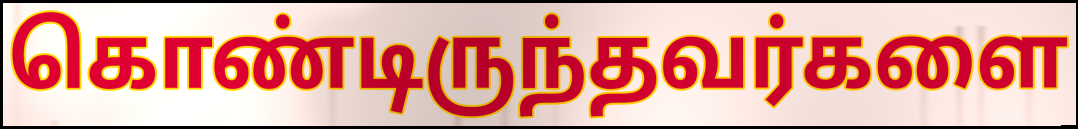
கொண்டிருந்தவர்களை